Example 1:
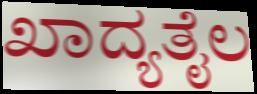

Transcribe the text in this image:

ಖಾದ್ಯತೈಲ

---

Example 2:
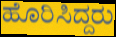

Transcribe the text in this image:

ಹೊರಿಸಿದ್ದರು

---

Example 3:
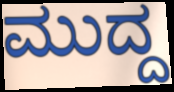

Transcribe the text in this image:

ಮುದ್ದ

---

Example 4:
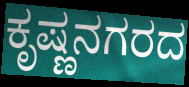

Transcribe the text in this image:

ಕೃಷ್ಣನಗರದ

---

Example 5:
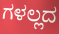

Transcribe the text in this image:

ಗಳಲ್ಲದ